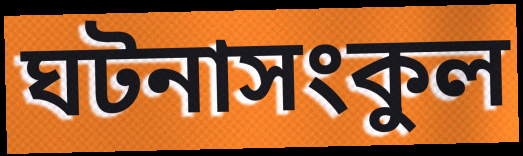
ঘটনাসংকুল